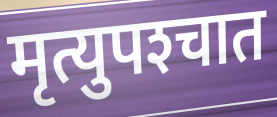
मृत्युपश्‍चात